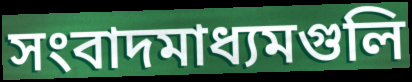
সংবাদমাধ্যমগুলি